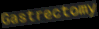
Gastrectomy